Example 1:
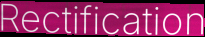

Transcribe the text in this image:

Rectification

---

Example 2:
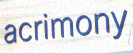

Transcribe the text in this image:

acrimony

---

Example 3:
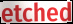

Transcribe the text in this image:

etched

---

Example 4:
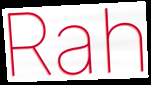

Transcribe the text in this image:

Rah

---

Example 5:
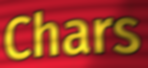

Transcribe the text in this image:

Chars